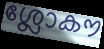
ശ്ലോകൗ